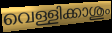
വെള്ളിക്കാശും